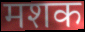
मशक